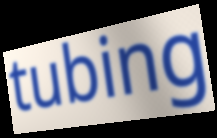
tubing